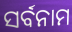
ସର୍ବନାମ